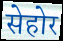
सेहोर